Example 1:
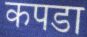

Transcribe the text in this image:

कपडा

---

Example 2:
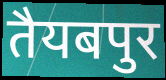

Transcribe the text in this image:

तैयबपुर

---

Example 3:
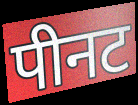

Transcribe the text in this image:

पीनट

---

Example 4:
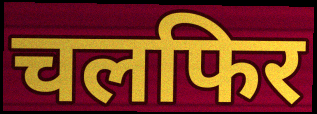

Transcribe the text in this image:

चलफिर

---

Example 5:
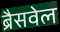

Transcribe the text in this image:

ब्रैसवेल